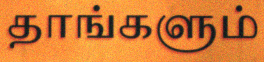
தாங்களும்